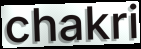
chakri